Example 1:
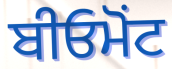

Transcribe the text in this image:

ਬੀਓਮੋਂਟ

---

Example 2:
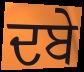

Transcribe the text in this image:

ਦਬੇ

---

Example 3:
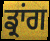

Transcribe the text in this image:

ਡ੍ਰਾਂਗ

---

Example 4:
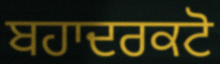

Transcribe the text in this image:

ਬਹਾਦਰਕਟੋ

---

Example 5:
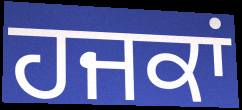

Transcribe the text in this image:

ਹਜਕਾਂ